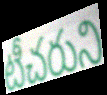
టీచరుని